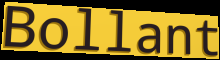
Bollant